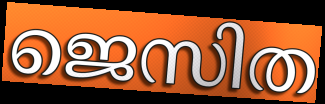
ജെസിത